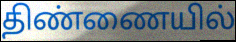
திண்ணையில்